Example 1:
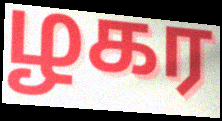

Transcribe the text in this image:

ழகர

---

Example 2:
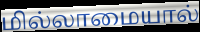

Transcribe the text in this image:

மில்லாமையால்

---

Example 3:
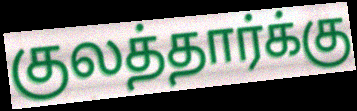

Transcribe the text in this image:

குலத்தார்க்கு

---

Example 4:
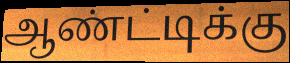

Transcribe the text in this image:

ஆண்ட்டிக்கு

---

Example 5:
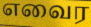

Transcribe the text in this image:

எவைர